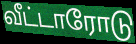
வீட்டாரோடு